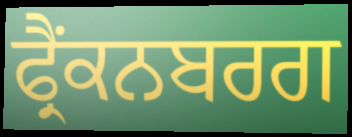
ਫ੍ਰੈਂਕਨਬਰਗ